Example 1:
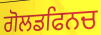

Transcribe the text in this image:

ਗੋਲਡਫਿਨਚ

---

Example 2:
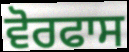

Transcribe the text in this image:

ਵੋਰਫਾਸ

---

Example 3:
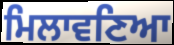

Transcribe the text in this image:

ਮਿਲਾਵਣਿਆ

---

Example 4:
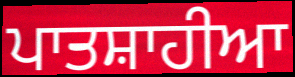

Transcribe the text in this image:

ਪਾਤਸ਼ਾਹੀਆ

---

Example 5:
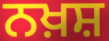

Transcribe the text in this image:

ਨਖ਼ਸ਼